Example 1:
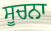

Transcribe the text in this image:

ਸੂਚਨਾ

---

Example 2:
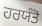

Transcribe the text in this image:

ਹਰਯੰਤੋ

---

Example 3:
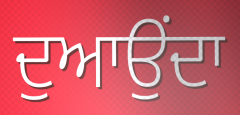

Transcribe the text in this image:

ਦੁਆਉਂਦਾ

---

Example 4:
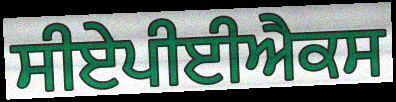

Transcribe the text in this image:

ਸੀਏਪੀਈਐਕਸ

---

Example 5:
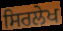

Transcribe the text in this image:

ਸਿਰਲੇਖ